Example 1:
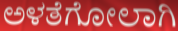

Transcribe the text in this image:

ಅಳತೆಗೋಲಾಗಿ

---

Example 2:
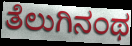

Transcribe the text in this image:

ತೆಲುಗಿನಂಥ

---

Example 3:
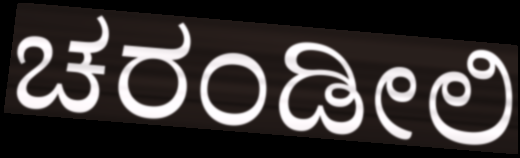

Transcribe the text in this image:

ಚರಂಡೀಲಿ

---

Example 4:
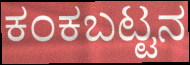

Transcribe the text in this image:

ಕಂಕಬಟ್ಟನ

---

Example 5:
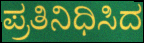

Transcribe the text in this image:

ಪ್ರತಿನಿಧಿಸಿದ